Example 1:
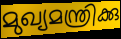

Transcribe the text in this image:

മുഖ്യമന്ത്രിക്കു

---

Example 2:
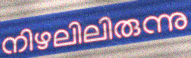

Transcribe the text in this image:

നിഴലിലിരുന്നു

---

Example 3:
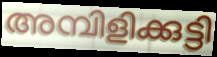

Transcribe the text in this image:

അമ്പിളിക്കുട്ടി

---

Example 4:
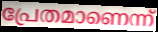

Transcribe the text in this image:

പ്രേതമാണെന്ന്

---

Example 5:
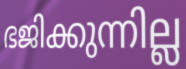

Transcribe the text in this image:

ഭജിക്കുന്നില്ല